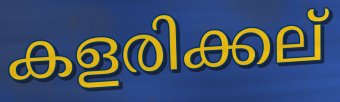
കളരിക്കല്